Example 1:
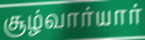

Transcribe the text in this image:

சூழ்வார்யார்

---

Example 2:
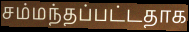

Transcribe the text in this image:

சம்மந்தப்பட்டதாக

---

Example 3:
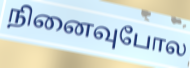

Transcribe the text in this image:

நினைவுபோல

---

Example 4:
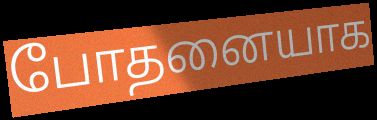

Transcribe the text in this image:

போதனையாக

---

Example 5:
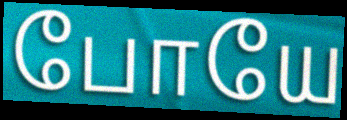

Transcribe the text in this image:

போயே